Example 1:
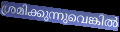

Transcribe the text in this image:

ശ്രമിക്കുന്നുവെങ്കിൽ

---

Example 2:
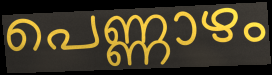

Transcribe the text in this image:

പെണ്ണാഴം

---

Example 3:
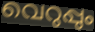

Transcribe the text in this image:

വെറുപ്പും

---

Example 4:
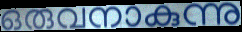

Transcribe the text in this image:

ഒരുവനാകുന്നു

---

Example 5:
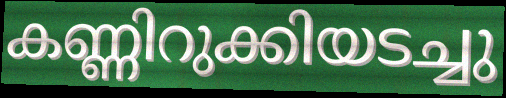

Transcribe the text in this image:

കണ്ണിറുക്കിയടച്ചു